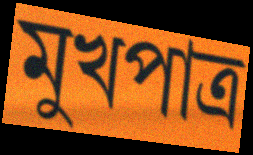
মুখপাত্র